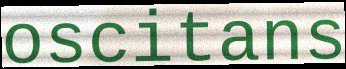
oscitans